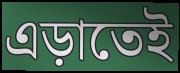
এড়াতেই